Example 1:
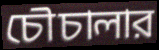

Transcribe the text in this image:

চৌচালার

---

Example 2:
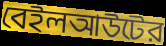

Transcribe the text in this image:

বেইলআউটের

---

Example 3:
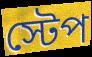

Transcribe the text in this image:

স্টেপ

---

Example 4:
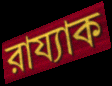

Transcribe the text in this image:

রায্যাক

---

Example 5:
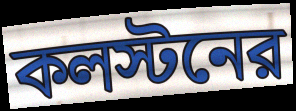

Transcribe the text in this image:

কলস্টনের